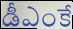
డీఎంకే